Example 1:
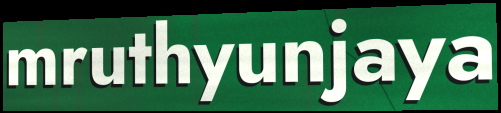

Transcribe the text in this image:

mruthyunjaya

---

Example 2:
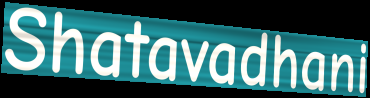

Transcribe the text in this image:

Shatavadhani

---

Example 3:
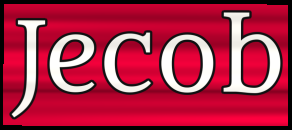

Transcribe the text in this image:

Jecob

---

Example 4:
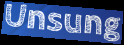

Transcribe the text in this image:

Unsung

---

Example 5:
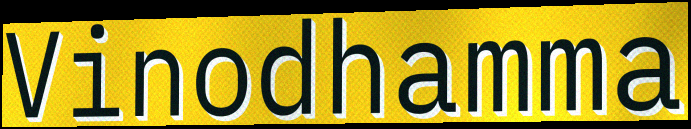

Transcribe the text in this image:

Vinodhamma